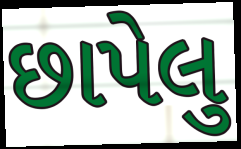
છાપેલુ